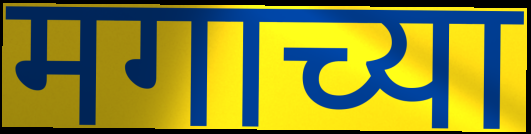
मगाच्या